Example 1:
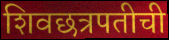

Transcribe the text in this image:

शिवछत्रपतीची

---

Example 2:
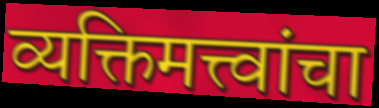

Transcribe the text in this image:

व्यक्तिमत्त्वांचा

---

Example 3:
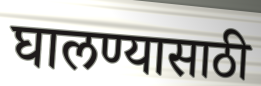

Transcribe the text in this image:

घालण्यासाठी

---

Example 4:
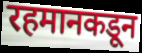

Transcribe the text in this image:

रहमानकडून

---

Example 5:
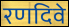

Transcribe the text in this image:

रणदिवे